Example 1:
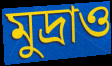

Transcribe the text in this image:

মুদ্রাও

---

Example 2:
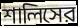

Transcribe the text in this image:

শালিসের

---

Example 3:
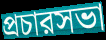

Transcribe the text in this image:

প্রচারসভা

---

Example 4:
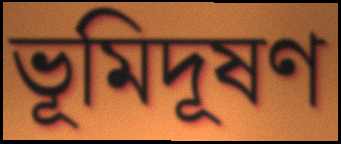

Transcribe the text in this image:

ভূমিদূষণ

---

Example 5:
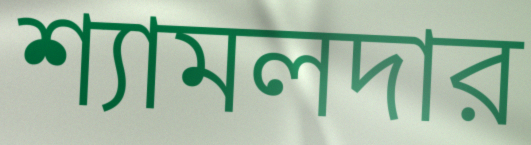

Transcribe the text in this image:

শ্যামলদার